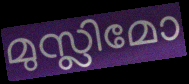
മുസ്ലിമോ